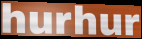
hurhur